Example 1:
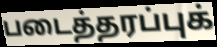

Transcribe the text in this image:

படைத்தரப்புக்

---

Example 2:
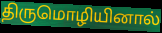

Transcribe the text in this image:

திருமொழியினால்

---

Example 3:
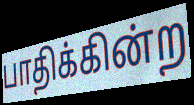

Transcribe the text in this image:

பாதிக்கின்ற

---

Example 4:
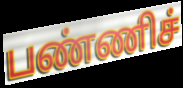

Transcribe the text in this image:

பண்ணிச்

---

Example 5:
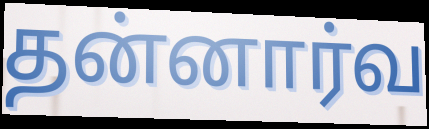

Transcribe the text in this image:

தன்னார்வ